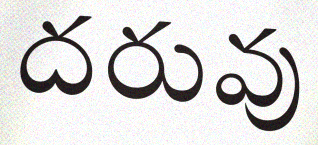
దరువు